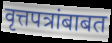
वृत्तपत्रांबाबत